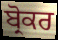
ਬ੍ਰੋਕਰ